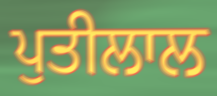
ਪੁਤੀਲਾਲ